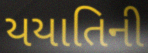
યયાતિની